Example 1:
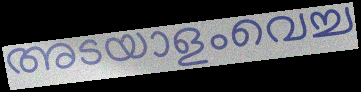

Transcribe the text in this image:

അടയാളംവെച്ച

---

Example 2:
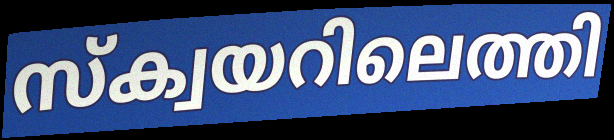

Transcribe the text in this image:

സ്ക്വയറിലെത്തി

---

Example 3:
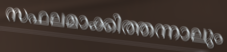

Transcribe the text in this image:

സഫലമാക്കിത്തന്നാലും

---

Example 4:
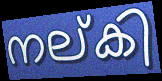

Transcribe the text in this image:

നല്കി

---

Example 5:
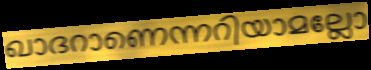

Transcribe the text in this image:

ഖാദറാണെന്നറിയാമല്ലോ